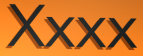
Xxxx